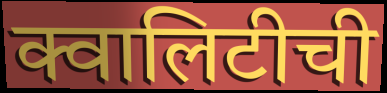
क्वालिटीची